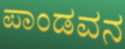
ಪಾಂಡವನ